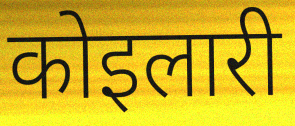
कोइलारी